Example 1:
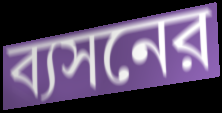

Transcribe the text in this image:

ব্যসনের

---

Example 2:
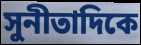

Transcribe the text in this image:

সুনীতাদিকে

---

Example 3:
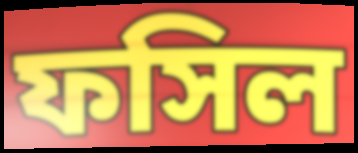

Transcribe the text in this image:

ফসিল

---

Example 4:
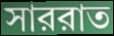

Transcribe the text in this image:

সাররাত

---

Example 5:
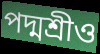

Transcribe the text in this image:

পদ্মশ্রীও